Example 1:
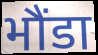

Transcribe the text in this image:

भौंडा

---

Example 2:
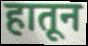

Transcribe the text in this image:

हातून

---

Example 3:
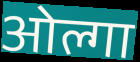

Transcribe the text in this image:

ओल्गा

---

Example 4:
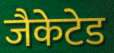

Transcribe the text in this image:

जैकेटेड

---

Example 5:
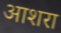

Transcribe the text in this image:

आशरा